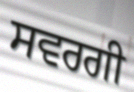
ਸਵਰਗੀ